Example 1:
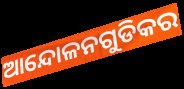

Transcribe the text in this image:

ଆନ୍ଦୋଳନଗୁଡିକର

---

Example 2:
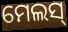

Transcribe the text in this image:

ମେଲସ୍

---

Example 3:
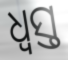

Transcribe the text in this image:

ଧ୍ବସ୍ତ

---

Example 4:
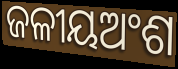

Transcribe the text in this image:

ଜଳୀୟଅଂଶ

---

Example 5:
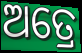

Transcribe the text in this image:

ଅତ୍ରେ